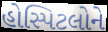
હોસ્પિટલોને